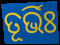
ତୂର୍ଭିଃ